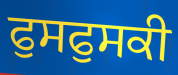
ਫੁਸਫੁਸਕੀ